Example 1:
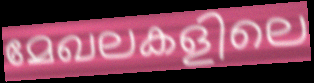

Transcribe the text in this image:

മേഖലകളിലെ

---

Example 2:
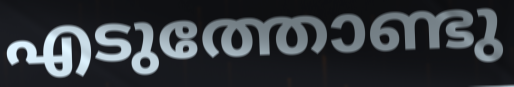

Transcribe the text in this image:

എടുത്തോണ്ടു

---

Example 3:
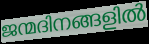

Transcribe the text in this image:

ജന്മദിനങ്ങളിൽ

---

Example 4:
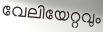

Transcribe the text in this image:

വേലിയേറ്റവും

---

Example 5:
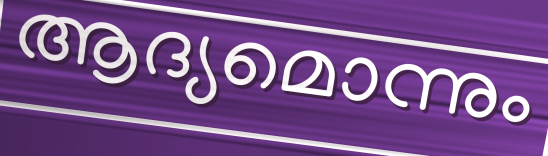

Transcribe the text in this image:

ആദ്യമൊന്നും